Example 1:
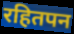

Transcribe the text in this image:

रहितपन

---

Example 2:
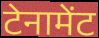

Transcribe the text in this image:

टेनामेंट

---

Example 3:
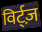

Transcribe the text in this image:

विर्ट्ज़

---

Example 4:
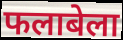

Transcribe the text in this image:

फलाबेला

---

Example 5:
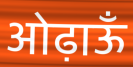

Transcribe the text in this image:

ओढ़ाऊँ